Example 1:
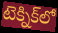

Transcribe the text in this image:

టెక్నిక్‌లో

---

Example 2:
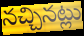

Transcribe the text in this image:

నచ్చినట్లు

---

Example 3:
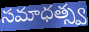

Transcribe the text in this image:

సమాధత్స్వ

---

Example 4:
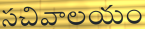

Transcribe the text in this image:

సచివాలయం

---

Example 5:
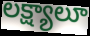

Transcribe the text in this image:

లక్ష్యాలూ